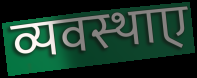
व्यवस्थाए